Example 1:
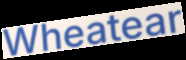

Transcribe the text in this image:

Wheatear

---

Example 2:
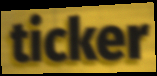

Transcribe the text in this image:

ticker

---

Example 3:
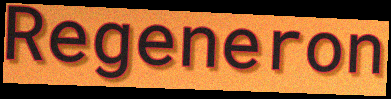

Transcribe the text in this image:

Regeneron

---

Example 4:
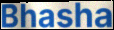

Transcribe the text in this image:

Bhasha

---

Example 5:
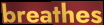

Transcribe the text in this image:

breathes